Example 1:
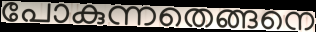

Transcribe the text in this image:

പോകുന്നതെങ്ങനെ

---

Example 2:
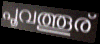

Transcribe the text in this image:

പൂവത്തൂര്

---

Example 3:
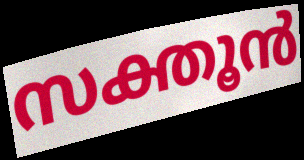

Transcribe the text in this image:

സക്തൂൻ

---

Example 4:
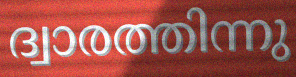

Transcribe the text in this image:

ദ്വാരത്തിന്നു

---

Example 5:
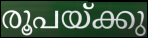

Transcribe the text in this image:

രൂപയ്ക്കു